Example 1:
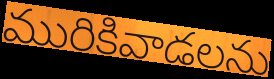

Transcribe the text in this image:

మురికివాడలను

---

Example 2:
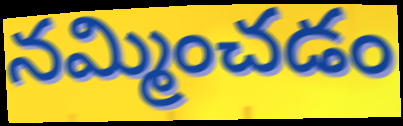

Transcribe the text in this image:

నమ్మించడం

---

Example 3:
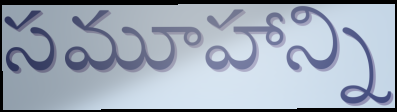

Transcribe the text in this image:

సమూహాన్ని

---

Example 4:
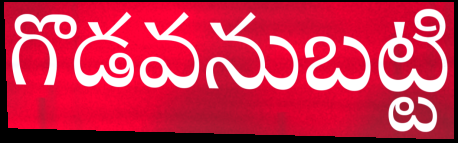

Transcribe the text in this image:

గొడవనుబట్టి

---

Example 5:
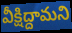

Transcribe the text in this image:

వీక్షిద్దామని